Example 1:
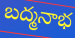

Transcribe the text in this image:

బద్మనాభ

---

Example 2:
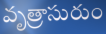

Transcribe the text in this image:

వృత్రాసురుం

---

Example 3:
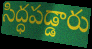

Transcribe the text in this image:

సిద్ధపడ్డారు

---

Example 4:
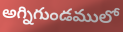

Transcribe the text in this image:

అగ్నిగుండములో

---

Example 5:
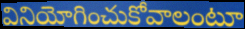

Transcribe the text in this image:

వినియోగించుకోవాలంటూ